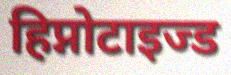
हिप्नोटाइज्ड